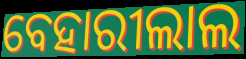
ବେହାରୀଲାଲ